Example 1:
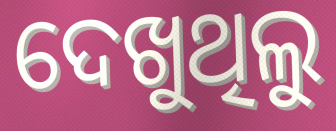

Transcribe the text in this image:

ଦେଖୁଥିଲୁ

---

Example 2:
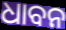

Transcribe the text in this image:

ଧାବନ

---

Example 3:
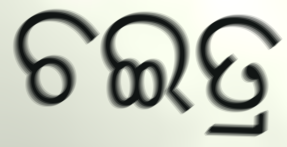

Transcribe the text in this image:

ଚଇତ୍ର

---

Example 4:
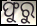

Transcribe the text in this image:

ଫୁରୁ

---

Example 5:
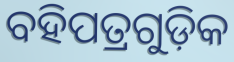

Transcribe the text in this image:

ବହିପତ୍ରଗୁଡ଼ିକ